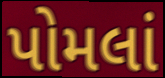
પોમલાં